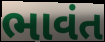
ભાવંત